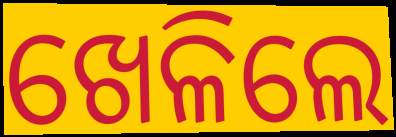
ଖେଳିଲେ